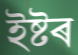
ইষ্টৰ